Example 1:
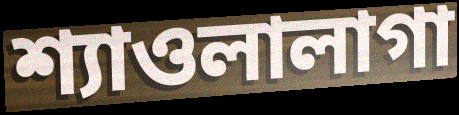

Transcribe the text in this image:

শ্যাওলালাগা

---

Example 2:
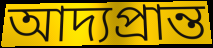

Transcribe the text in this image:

আদ্যপ্রান্ত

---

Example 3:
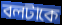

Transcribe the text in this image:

বলটাকে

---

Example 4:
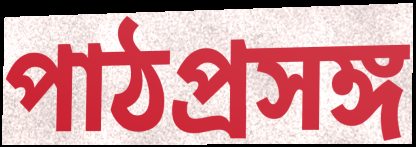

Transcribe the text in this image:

পাঠপ্রসঙ্গ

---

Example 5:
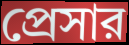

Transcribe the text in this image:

প্রেসার